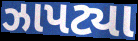
ઝાપટ્યા